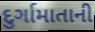
દુર્ગામાતાની